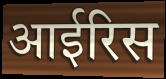
आईरिस